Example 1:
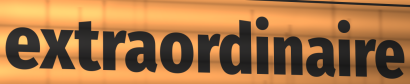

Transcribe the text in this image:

extraordinaire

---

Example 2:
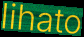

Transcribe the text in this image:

lihato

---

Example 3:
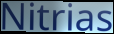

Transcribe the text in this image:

Nitrias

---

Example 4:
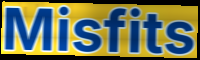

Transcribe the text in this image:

Misfits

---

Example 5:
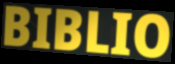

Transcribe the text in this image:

BIBLIO